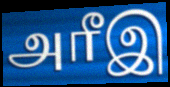
அரீஇ